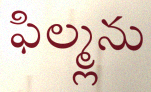
ఫిల్మ్లను